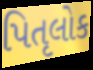
પિતૃલોક